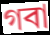
গবা